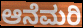
ಆನೆಮರಿ